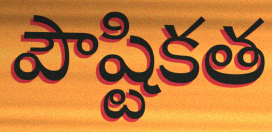
పౌష్టికత